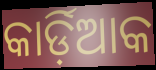
କାର୍ଡ଼ିଆକ